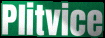
Plitvice